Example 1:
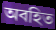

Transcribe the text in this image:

অবহিত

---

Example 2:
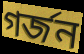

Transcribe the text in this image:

গর্জন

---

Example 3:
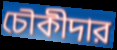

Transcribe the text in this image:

চৌকীদার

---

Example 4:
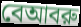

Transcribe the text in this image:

বেআবরু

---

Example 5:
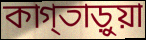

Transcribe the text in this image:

কাগ্‌তাড়ুয়া